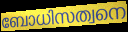
ബോധിസത്വനെ